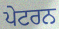
ਪੇਟਰਨ